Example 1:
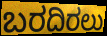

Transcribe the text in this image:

ಬರದಿರಲು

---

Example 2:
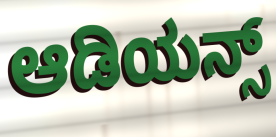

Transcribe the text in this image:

ಆಡಿಯನ್ಸ್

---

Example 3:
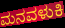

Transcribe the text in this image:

ಮನವಳುಕಿ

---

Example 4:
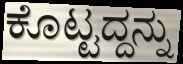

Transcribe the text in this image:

ಕೊಟ್ಟದ್ದನ್ನು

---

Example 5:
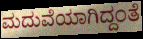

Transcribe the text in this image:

ಮದುವೆಯಾಗಿದ್ದಂತೆ